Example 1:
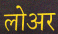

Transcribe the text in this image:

लोअर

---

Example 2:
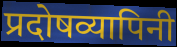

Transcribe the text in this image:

प्रदोषव्यापिनी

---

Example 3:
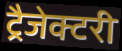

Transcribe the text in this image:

ट्रैजेक्टरी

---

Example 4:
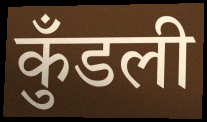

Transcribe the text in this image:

कुँडली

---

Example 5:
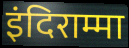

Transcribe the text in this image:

इंदिराम्मा